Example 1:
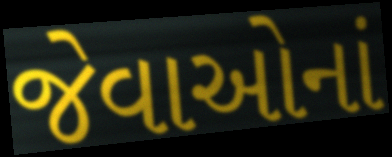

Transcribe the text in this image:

જેવાઓનાં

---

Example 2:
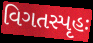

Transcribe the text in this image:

વિગતસ્પૃહઃ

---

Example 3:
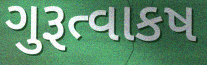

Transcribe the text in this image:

ગુરૂત્વાકષ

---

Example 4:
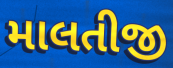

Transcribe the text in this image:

માલતીજી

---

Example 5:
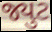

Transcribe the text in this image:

જ્યુટ